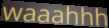
waaahhh